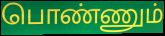
பொண்ணும்